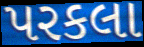
પરકલા